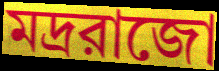
মদ্ররাজো